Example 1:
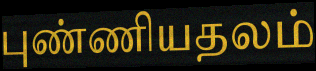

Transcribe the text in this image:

புண்ணியதலம்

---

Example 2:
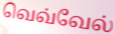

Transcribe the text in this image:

வெவ்வேல்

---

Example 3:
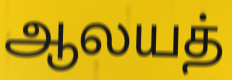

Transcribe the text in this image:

ஆலயத்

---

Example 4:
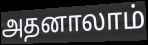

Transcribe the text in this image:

அதனாலாம்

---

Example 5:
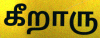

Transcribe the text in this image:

கீறாரு